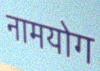
नामयोग